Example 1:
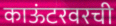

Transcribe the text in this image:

काऊंटरवरची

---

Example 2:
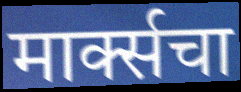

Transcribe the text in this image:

मार्क्सचा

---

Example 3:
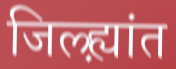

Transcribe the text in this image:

जिल्ह्य़ांत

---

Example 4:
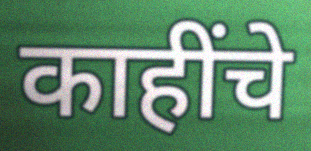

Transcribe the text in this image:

काहींचे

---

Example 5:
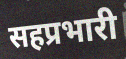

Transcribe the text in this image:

सहप्रभारी